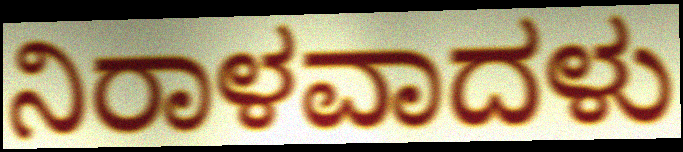
ನಿರಾಳವಾದಳು